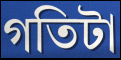
গতিটা